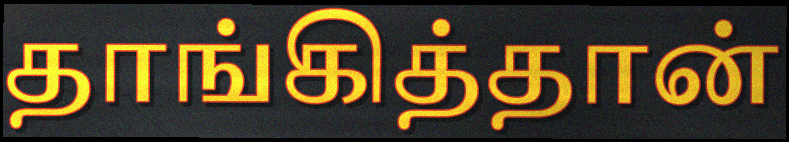
தாங்கித்தான்